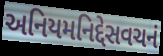
અનિયમનિદ્દેસવચનં